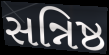
સન્નિષ્ઠ